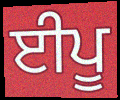
ਈਪੂ